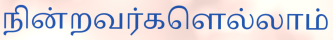
நின்றவர்களெல்லாம்